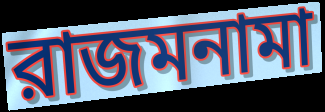
রাজমনামা